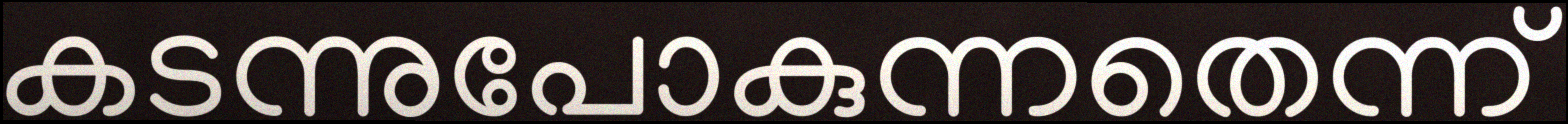
കടന്നുപോകുന്നതെന്ന്